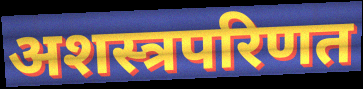
अशस्त्रपरिणत